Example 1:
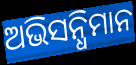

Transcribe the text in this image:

ଅଭିସନ୍ଧିମାନ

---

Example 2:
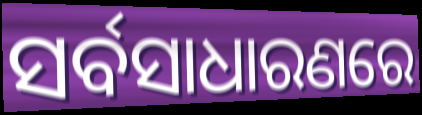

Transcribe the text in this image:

ସର୍ବସାଧାରଣରେ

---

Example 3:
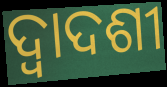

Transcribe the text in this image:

ଦ୍ବାଦଶୀ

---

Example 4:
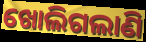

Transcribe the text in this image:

ଖୋଲିଗଲାଣି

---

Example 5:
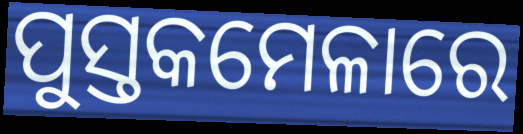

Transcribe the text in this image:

ପୁସ୍ତକମେଳାରେ